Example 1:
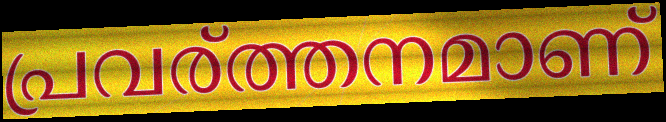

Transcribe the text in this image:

പ്രവര്ത്തനമാണ്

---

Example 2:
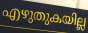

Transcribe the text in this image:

എഴുതുകയില്ല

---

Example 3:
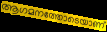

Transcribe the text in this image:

ആഗമനത്തോടെയാണ്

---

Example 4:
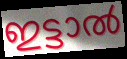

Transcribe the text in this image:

ഇട്ടാൽ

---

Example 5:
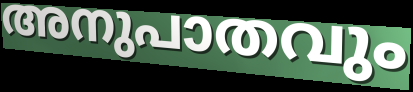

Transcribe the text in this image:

അനുപാതവും